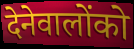
देनेवालोंको